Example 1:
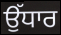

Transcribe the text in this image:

ਉੱਧਾਰ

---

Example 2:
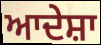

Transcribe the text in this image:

ਆਦੇਸ਼ਾ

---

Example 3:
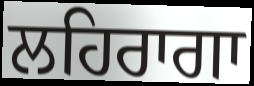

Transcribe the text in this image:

ਲਹਿਰਾਗਾ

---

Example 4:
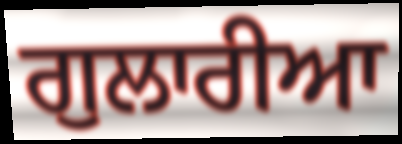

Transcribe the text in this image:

ਗੁਲਾਰੀਆ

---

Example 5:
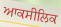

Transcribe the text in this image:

ਆਕਸੀਲਿਕ